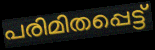
പരിമിതപ്പെട്ട്